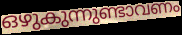
ഒഴുകുന്നുണ്ടാവണം